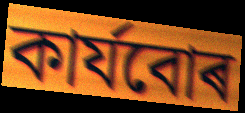
কাৰ্যবোৰ